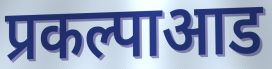
प्रकल्पाआड